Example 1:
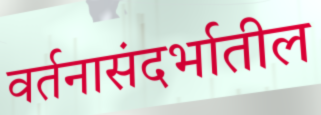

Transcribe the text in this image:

वर्तनासंदर्भातील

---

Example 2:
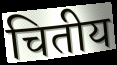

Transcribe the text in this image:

चितीय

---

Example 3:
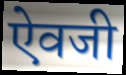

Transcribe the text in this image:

ऐवजी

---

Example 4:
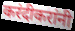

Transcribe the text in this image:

करंदीकरांनी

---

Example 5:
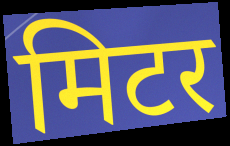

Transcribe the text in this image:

मिटर